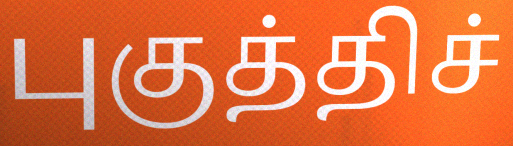
புகுத்திச்